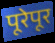
पूरेपूर